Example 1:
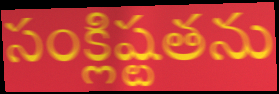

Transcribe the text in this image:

సంక్లిష్టతను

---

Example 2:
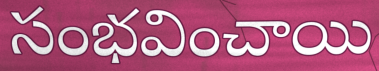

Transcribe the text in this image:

సంభవించాయి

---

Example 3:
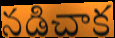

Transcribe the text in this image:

నడిచాక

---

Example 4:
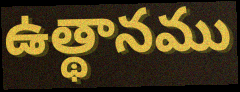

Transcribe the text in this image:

ఉత్థానము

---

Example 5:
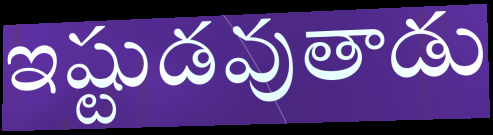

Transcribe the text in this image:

ఇష్టుడవుతాడు